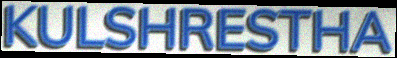
KULSHRESTHA